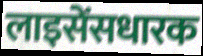
लाइसेंसधारक